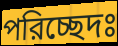
পরিচ্ছেদঃ